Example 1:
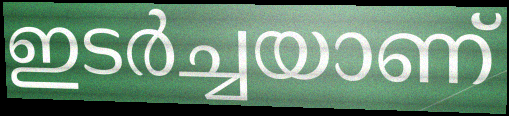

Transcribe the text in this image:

ഇടർച്ചയാണ്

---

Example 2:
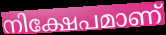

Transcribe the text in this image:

നിക്ഷേപമാണ്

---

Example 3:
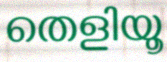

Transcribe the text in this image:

തെളിയൂ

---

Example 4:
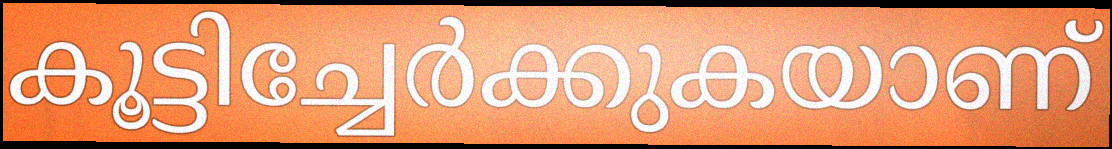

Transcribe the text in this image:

കൂട്ടിച്ചേർക്കുകയാണ്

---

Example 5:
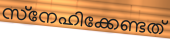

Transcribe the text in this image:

സ്‌നേഹിക്കേണ്ടത്